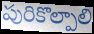
పురికొల్పాలి